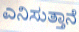
ಎನಿಸುತ್ತಾನೆ